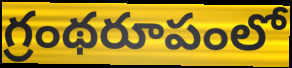
గ్రంథరూపంలో